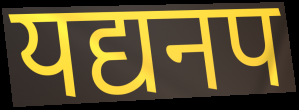
यद्यनप